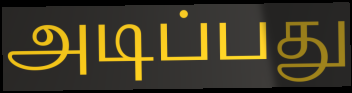
அடிப்பது